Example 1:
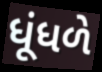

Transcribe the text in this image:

ધૂંધળે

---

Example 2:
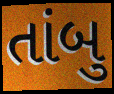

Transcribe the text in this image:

તાંબુ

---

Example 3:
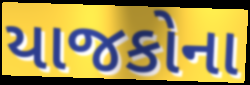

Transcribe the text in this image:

યાજકોના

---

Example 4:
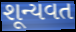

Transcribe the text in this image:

શૂન્યવત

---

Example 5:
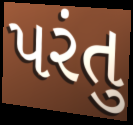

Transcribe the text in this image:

પરંતુ